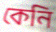
কেনি